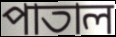
পাতাল